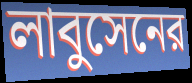
লাবুসেনের